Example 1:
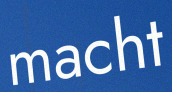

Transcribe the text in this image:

macht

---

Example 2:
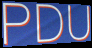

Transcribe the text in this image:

PDU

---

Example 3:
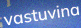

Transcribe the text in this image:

vastuvina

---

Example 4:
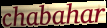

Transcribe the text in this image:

chabahar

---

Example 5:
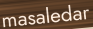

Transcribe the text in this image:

masaledar